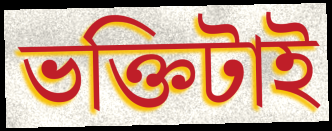
ভক্তিটাই